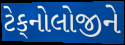
ટેક્‌નોલોજીને